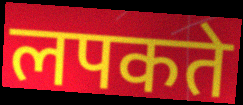
लपकते